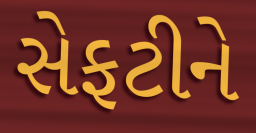
સેફટીને